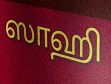
ஸாஹி